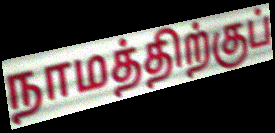
நாமத்திற்குப்